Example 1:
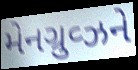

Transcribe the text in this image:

મેનગ્રુવ્ઝને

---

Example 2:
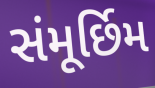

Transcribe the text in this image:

સંમૂર્છિમ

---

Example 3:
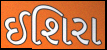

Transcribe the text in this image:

ઈશિરા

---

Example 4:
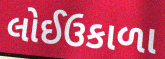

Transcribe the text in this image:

લોઈઉકાળા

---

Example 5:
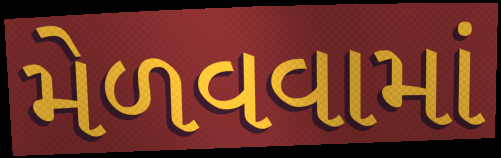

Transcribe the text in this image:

મેળવવામાં